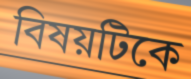
বিষয়টিকে